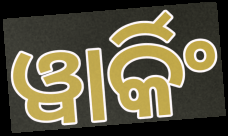
ୱାର୍କିଂ